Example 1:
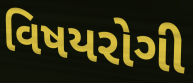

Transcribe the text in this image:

વિષયરોગી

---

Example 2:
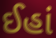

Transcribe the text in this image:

ઈહાં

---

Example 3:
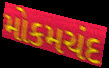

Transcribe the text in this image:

મોકમચંદ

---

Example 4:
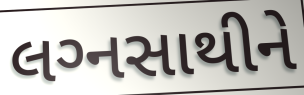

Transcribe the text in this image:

લગ્‍નસાથીને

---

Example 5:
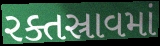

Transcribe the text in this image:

રક્તસ્રાવમાં